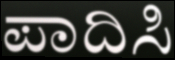
ಪಾದಿಸಿ